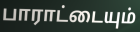
பாராட்டையும்